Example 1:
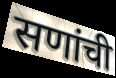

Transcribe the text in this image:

सणांची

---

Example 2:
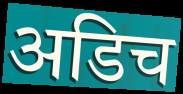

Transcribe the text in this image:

अडिच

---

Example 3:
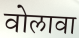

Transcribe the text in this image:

वोलावा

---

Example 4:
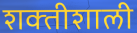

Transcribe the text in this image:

शक्‍तीशाली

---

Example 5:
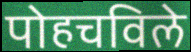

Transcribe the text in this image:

पोहचविले